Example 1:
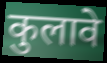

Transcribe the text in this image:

कुलावे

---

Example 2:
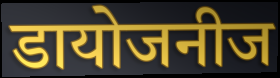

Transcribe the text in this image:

डायोजनीज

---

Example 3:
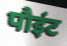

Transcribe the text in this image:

पौइंट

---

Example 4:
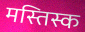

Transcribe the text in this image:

मस्तिस्क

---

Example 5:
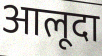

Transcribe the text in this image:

आलूदा